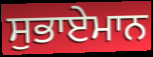
ਸੁਭਾਏਮਾਨ